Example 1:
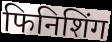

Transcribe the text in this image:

फिनिशिंग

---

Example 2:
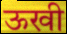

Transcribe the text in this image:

ऊखी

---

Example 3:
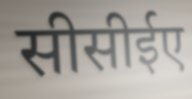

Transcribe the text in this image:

सीसीईए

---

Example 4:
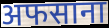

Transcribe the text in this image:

अफसाना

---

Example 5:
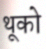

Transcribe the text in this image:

थूको